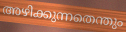
അഴിക്കുന്നതെന്തും